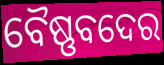
ବୈଷ୍ଣବଦେର